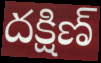
దక్షిణ్